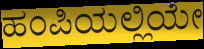
ಹಂಪಿಯಲ್ಲಿಯೇ